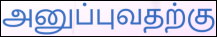
அனுப்புவதற்கு